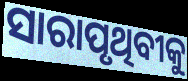
ସାରାପୃଥିବୀକୁ